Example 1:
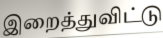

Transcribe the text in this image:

இறைத்துவிட்டு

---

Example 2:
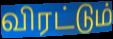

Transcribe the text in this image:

விரட்டும்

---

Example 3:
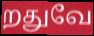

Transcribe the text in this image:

றதுவே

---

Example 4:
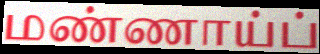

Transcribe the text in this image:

மண்ணாய்ப்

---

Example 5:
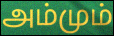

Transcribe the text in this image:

அம்மும்